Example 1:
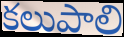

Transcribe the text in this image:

కలుపాలి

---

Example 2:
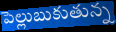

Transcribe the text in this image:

పెల్లుబుకుతున్న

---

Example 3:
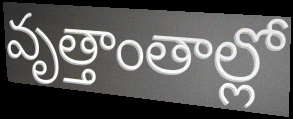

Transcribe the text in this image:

వృత్తాంతాల్లో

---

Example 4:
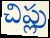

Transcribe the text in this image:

చిప్లు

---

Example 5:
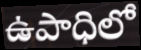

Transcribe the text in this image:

ఉపాధిలో